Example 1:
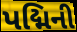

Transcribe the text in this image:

પદ્મિની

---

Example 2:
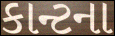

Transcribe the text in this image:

કાન્ટના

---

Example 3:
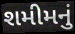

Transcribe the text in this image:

શમીમનું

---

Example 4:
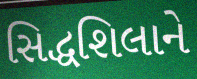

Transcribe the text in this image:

સિદ્ધશિલાને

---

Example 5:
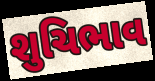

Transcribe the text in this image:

શુચિભાવ